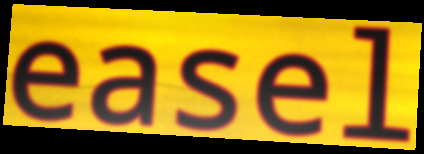
easel